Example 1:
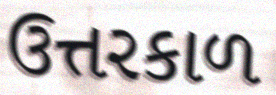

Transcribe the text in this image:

ઉત્તરકાળ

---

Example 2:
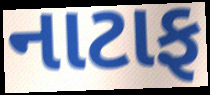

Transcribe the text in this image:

નાટાફ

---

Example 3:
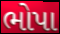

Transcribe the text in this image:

ભોપા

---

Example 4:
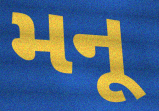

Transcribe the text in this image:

મનૂ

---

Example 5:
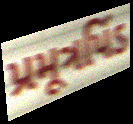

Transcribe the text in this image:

પ્રમૂત્રપિંડ